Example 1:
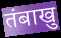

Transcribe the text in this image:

तंबाखु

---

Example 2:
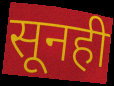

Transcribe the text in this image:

सूनही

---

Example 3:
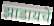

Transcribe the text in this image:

झाडायचे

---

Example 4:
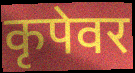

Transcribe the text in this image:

कृपेवर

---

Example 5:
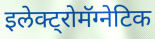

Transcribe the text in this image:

इलेक्ट्रोमॅग्नेटिक